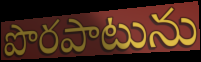
పొరపాటును